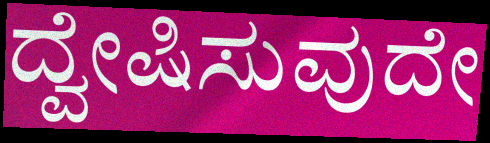
ದ್ವೇಷಿಸುವುದೇ